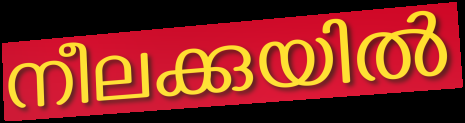
നീലക്കുയിൽ